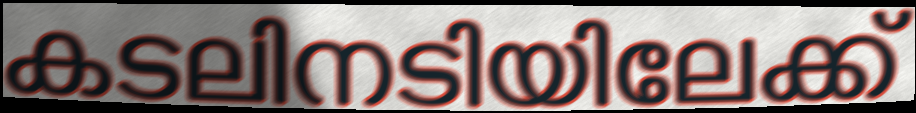
കടലിനടിയിലേക്ക്